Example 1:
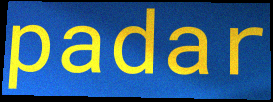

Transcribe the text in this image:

padar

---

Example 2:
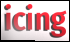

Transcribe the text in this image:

icing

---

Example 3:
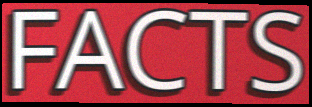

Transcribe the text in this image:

FACTS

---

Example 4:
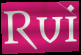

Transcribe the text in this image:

Rui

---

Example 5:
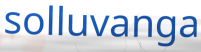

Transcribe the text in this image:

solluvanga